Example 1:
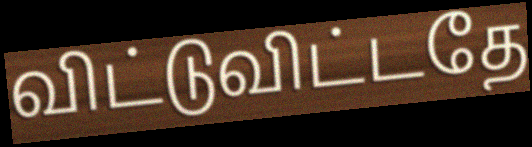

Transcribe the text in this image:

விட்டுவிட்டதே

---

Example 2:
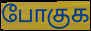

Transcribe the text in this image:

போகுக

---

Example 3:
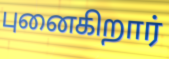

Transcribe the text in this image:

புனைகிறார்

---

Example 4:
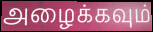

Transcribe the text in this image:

அழைக்கவும்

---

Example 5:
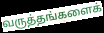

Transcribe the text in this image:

வருத்தங்களைக்